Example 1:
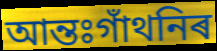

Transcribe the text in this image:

আন্তঃগাঁথনিৰ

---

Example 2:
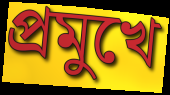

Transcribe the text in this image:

প্ৰমুখে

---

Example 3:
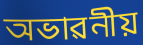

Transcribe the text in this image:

অভাৱনীয়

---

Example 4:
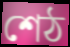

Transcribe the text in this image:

শেঠ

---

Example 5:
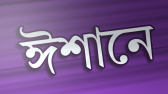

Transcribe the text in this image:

ঈশানে